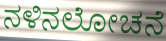
ನಳಿನಲೋಚನೆ